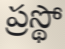
ప్రస్థో